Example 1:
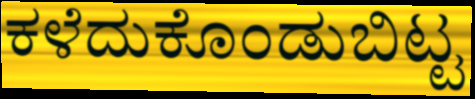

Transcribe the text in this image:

ಕಳೆದುಕೊಂಡುಬಿಟ್ಟ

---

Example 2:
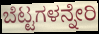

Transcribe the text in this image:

ಬೆಟ್ಟಗಳನ್ನೇರಿ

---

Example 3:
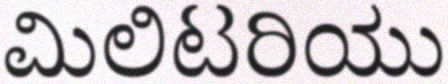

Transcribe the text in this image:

ಮಿಲಿಟರಿಯು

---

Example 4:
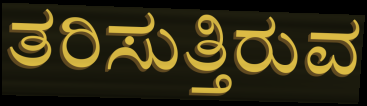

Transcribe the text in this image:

ತರಿಸುತ್ತಿರುವ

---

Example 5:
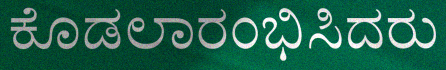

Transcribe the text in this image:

ಕೊಡಲಾರಂಭಿಸಿದರು